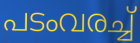
പടംവരച്ച്